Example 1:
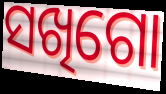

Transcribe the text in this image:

ସଖିଗୋ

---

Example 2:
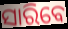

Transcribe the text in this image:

ସାରିବେ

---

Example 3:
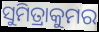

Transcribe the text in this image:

ସୁମିତ୍ରାକୁମର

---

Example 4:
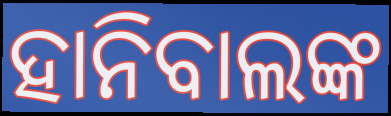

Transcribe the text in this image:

ହାନିବାଲଙ୍କ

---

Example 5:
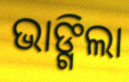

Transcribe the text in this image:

ଭାଙ୍ଗିଲା